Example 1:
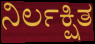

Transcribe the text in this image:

ನಿರ್ಲಕ್ಷಿತ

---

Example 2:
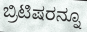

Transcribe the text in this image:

ಬ್ರಿಟಿಷರನ್ನೂ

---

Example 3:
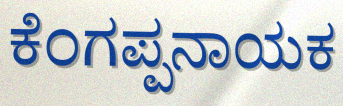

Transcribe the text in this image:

ಕೆಂಗಪ್ಪನಾಯಕ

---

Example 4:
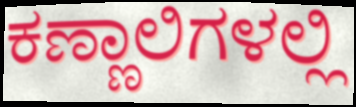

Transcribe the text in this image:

ಕಣ್ಣಾಲಿಗಳಲ್ಲಿ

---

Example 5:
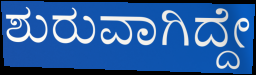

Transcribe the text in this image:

ಶುರುವಾಗಿದ್ದೇ